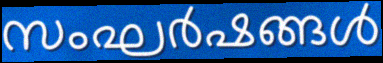
സംഘർഷങ്ങൾ